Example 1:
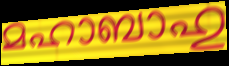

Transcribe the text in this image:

മഹാബാഹു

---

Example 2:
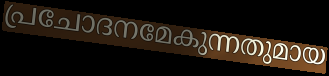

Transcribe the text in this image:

പ്രചോദനമേകുന്നതുമായ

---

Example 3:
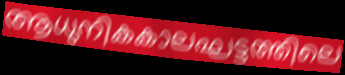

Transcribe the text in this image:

ആധുനികകാലഘട്ടത്തിലെ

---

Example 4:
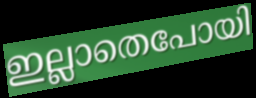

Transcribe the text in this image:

ഇല്ലാതെപോയി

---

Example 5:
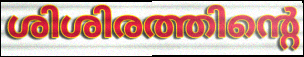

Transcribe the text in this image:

ശിശിരത്തിന്റെ